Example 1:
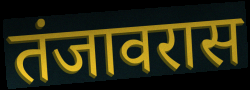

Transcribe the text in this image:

तंजावरास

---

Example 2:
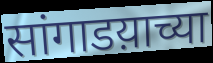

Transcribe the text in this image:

सांगाडय़ाच्या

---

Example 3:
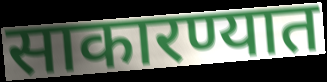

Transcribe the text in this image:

साकारण्यात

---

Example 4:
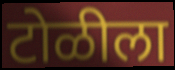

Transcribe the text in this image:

टोळीला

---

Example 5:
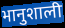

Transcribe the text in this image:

भानुशाली